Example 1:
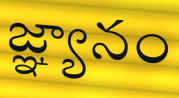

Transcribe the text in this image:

జ్ఞ్యానం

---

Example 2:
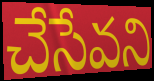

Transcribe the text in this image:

చేసేవని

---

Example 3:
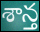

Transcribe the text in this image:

శాన్త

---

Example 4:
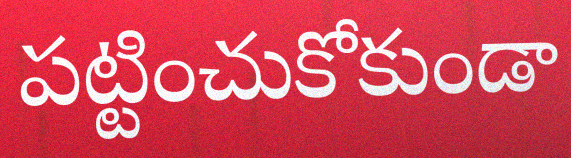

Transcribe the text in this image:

పట్టించుకోకుండా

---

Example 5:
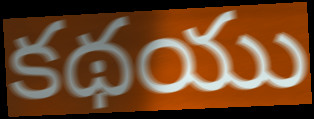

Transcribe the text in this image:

కథయు